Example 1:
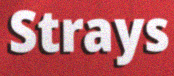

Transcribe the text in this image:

Strays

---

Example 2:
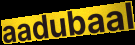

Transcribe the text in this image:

aadubaal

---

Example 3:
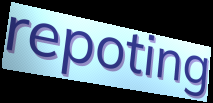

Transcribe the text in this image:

repoting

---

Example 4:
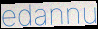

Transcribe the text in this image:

edannu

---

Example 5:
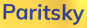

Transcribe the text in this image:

Paritsky